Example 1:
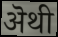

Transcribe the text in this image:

ऄथी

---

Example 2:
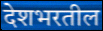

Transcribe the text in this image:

देशभरतील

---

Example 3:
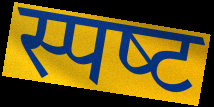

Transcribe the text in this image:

स्‍पष्‍ट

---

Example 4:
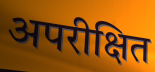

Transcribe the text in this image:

अपरीक्षित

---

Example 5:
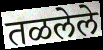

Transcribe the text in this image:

तळलेले